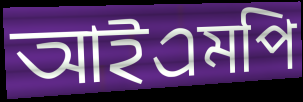
আইএমপি